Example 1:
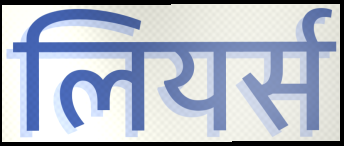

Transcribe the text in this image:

लियर्स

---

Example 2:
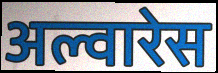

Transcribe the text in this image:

अल्वारेस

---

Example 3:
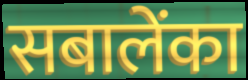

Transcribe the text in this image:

सबालेंका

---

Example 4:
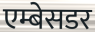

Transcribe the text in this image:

एम्बेसडर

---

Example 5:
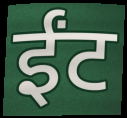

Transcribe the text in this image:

ईंट